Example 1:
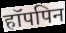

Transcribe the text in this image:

हॉपपिन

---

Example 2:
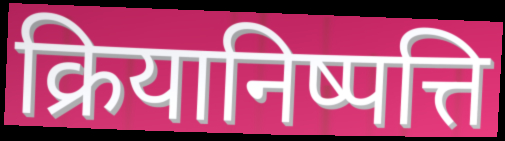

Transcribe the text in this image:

क्रियानिष्पत्ति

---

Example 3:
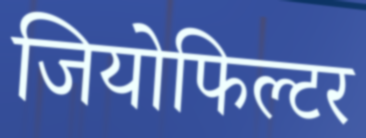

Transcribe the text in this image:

जियोफिल्टर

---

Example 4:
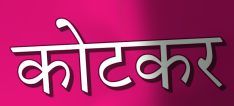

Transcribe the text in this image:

कोटकर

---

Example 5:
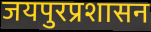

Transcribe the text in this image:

जयपुरप्रशासन